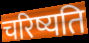
चरिष्यति